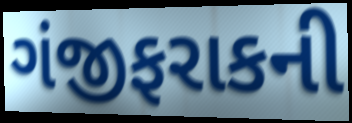
ગંજીફરાકની